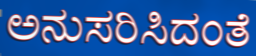
ಅನುಸರಿಸಿದಂತೆ